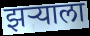
झर्‍याला